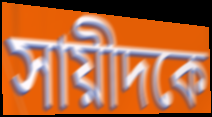
সায়ীদকে